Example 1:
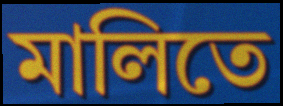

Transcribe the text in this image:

মালিতে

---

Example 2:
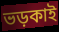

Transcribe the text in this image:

ভড়কাই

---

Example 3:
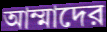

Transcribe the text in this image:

আম্মাদের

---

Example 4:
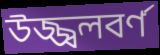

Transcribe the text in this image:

উজ্জ্বলবর্ণ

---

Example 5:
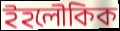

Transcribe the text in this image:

ইহলৌকিক